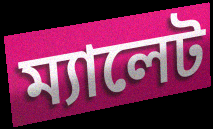
ম্যালেট